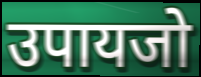
उपायजो